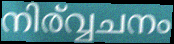
നിര്വ്വചനം